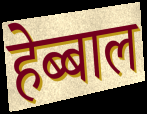
हेब्बाल